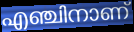
എഞ്ചിനാണ്